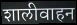
शालीवाहन